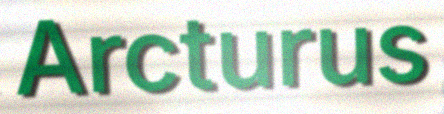
Arcturus